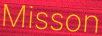
Misson